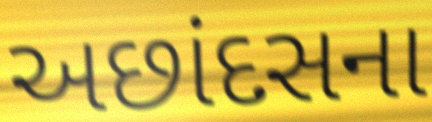
અછાંદસના